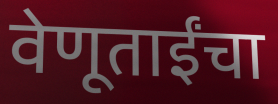
वेणूताईंचा